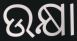
ଉକ୍ଷା